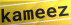
kameez